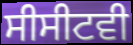
ਸੀਸੀਟਵੀ